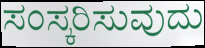
ಸಂಸ್ಕರಿಸುವುದು